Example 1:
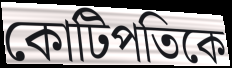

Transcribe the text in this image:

কোটিপতিকে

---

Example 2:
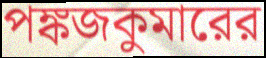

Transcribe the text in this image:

পঙ্কজকুমারের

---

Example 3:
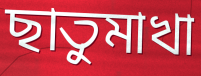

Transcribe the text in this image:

ছাতুমাখা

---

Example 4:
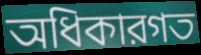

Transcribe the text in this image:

অধিকারগত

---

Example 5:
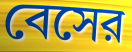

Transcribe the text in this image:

বেসের